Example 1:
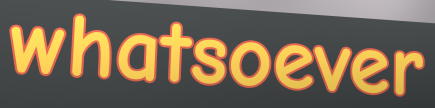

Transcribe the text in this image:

whatsoever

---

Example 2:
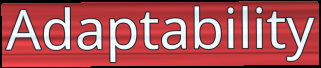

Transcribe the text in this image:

Adaptability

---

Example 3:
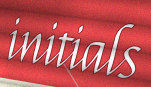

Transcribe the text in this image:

initials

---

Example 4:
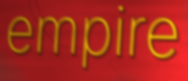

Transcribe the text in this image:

empire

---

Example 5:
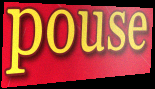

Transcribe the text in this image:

pouse